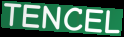
TENCEL